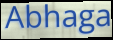
Abhaga